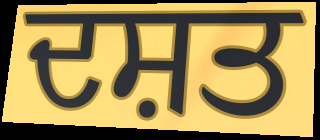
ਦਸ਼ਤ